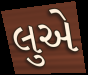
લુએ